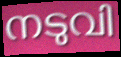
നടുവി